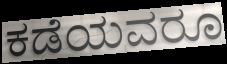
ಕಡೆಯವರೂ